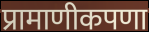
प्रामाणीकपणा